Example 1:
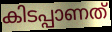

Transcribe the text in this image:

കിടപ്പാണത്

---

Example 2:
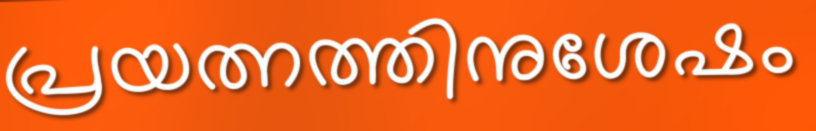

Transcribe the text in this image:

പ്രയത്നത്തിനുശേഷം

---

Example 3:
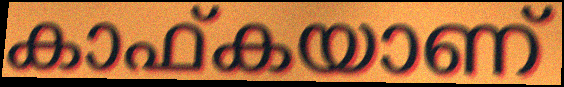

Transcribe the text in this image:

കാഫ്കയാണ്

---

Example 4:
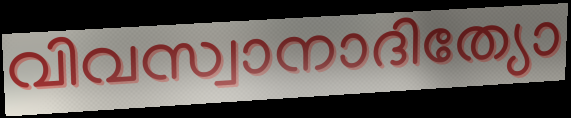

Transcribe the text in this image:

വിവസ്വാനാദിത്യോ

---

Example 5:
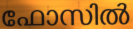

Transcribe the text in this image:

ഫോസിൽ